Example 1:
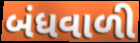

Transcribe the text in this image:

બંધવાળી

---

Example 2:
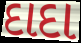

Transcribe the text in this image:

દાદા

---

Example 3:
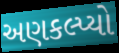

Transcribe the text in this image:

અણકલ્પ્યો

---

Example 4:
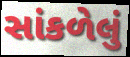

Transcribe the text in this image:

સાંકળેલું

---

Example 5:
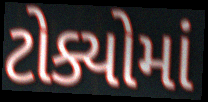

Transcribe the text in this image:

ટોક્યોમાં